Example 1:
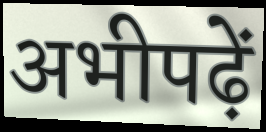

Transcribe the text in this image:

अभीपढ़ें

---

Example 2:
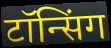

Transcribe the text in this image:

टॉन्सिंग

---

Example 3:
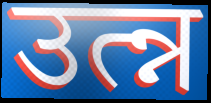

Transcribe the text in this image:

उत्न्न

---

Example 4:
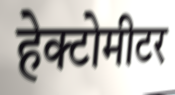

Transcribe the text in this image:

हेक्टोमीटर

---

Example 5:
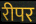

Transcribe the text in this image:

रीपर